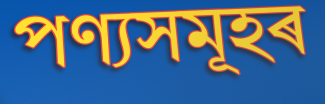
পণ্যসমূহৰ